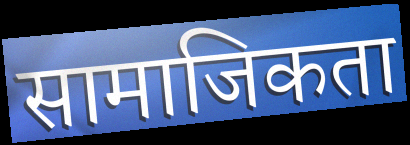
सामाजिकता